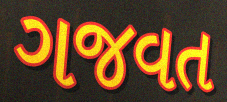
ગજવત